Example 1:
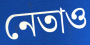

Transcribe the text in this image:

নেতাও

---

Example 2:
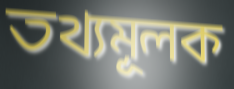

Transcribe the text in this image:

তথ্যমূলক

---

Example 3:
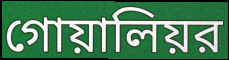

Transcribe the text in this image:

গোয়ালিয়র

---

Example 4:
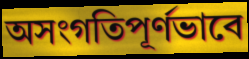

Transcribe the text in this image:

অসংগতিপূর্ণভাবে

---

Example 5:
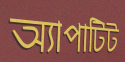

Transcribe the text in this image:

অ্যাপাটিট